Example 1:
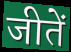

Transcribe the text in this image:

जीतें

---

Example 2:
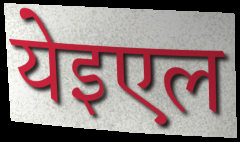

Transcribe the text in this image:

येइएल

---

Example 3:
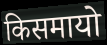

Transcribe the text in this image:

किसमायो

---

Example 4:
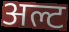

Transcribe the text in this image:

अल्ट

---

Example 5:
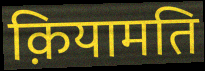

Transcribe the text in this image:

क़ियामति